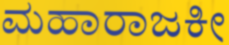
ಮಹಾರಾಜಕೀ